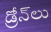
డ్రోన్‌లు